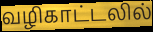
வழிகாட்டலில்